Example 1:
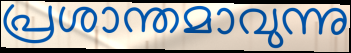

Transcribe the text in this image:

പ്രശാന്തമാവുന്നു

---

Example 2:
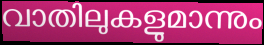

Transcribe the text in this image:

വാതിലുകളുമാന്നും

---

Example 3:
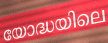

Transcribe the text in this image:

യോദ്ധയിലെ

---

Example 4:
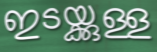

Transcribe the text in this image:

ഇടയ്ക്കുള്ള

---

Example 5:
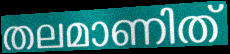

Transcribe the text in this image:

തലമാണിത്